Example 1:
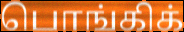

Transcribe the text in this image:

பொங்கிக்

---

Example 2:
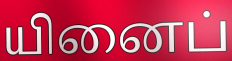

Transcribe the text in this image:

யினைப்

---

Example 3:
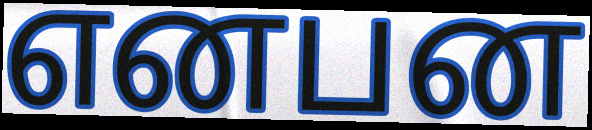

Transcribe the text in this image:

எனபன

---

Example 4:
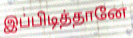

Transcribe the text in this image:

இப்பிடித்தானே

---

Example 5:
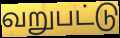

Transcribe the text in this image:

வறுபட்டு